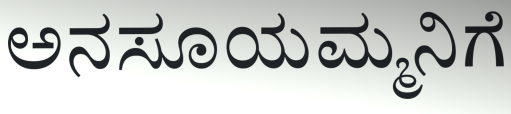
ಅನಸೂಯಮ್ಮನಿಗೆ